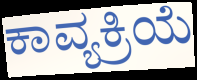
ಕಾವ್ಯಕ್ರಿಯೆ